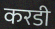
करडी